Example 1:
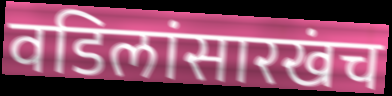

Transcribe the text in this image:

वडिलांसारखंच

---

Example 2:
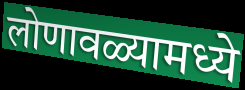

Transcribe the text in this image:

लोणावळ्यामध्ये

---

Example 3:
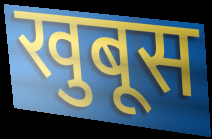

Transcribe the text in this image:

खुबूस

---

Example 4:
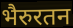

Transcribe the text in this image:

भैरुरतन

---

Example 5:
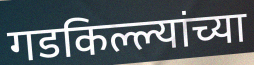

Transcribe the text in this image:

गडकिल्ल्यांच्या